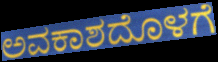
ಅವಕಾಶದೊಳಗೆ